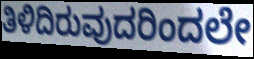
ತಿಳಿದಿರುವುದರಿಂದಲೇ